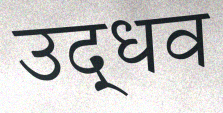
उद्धव